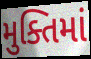
મુક્તિમાં